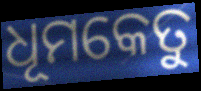
ଧୂମକେତୁ